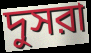
দুসরা